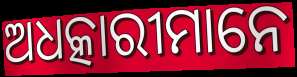
ଅଧତ୍କାରୀମାନେ